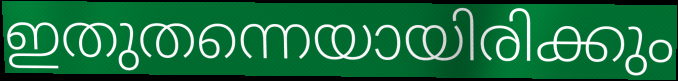
ഇതുതന്നെയായിരിക്കും